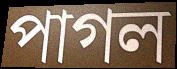
পাগল